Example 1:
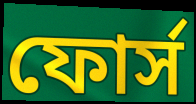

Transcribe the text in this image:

ফোর্স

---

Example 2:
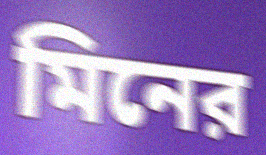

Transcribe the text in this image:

মিনের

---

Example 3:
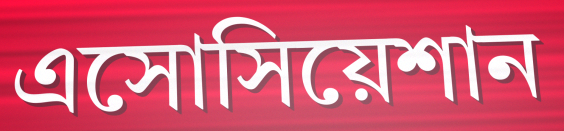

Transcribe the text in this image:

এসোসিয়েশান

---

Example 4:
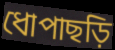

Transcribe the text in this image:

ধোপাছড়ি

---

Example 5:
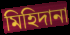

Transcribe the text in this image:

মিহিদানা